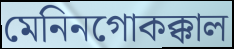
মেনিনগোকক্কাল